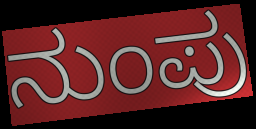
ನುಂಪು